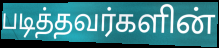
படித்தவர்களின்